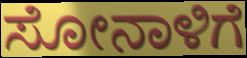
ಸೋನಾಳಿಗೆ